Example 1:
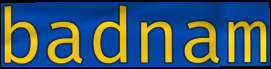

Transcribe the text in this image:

badnam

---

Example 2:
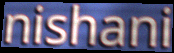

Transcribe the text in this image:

nishani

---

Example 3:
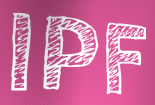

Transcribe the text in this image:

IPF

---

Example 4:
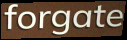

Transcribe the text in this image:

forgate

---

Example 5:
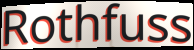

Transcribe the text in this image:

Rothfuss